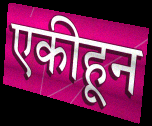
एकीहून